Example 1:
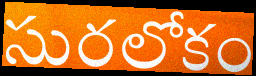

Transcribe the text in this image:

సురలోకం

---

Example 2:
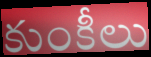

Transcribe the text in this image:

కుంకీలు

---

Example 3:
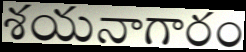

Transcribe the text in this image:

శయనాగారం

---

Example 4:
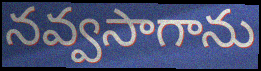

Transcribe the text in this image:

నవ్వసాగాను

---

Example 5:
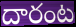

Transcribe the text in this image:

దారంట